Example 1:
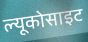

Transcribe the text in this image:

ल्यूकोसाइट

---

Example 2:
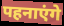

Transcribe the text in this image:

पहनाएंगे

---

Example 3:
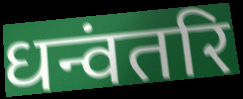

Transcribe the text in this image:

धन्वंतरि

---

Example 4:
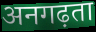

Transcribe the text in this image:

अनगढ़ता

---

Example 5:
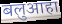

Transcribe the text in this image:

बलुआहा